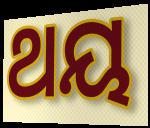
ଥୟ